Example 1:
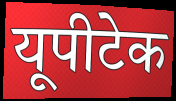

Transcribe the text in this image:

यूपीटेक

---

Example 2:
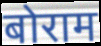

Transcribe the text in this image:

बोराम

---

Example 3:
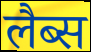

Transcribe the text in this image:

लैब्स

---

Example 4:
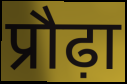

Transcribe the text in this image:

प्रौढ़ा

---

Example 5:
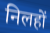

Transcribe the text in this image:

निलहों